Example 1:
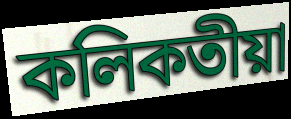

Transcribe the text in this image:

কলিকতীয়া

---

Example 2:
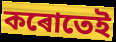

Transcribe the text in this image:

কৰোতেই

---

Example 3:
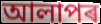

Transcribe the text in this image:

আলাপৰ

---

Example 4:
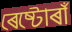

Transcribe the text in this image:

ৰেষ্টোৰাঁ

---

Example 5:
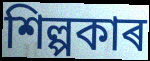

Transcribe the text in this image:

শিল্পকাৰ